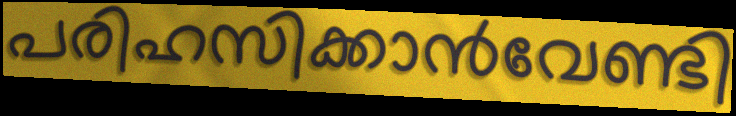
പരിഹസിക്കാൻവേണ്ടി